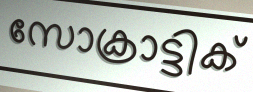
സോക്രാട്ടിക്